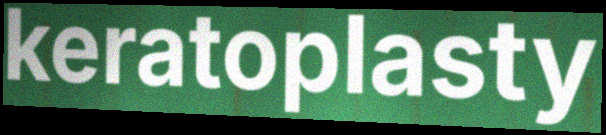
keratoplasty